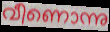
വീണൊന്നു